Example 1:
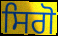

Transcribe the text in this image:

ਸਿਗੋ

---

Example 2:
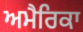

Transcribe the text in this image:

ਅਮੈਰਿਕਾ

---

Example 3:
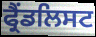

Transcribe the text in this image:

ਫ੍ਰੈਂਡਲਿਸਟ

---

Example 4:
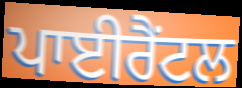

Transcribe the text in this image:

ਪਾਈਰੈਂਟਲ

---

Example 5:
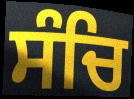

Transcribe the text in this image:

ਸੰਚਿ